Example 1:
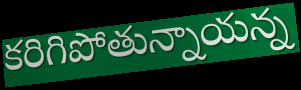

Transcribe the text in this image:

కరిగిపోతున్నాయన్న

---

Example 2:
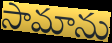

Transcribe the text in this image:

సామాను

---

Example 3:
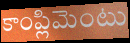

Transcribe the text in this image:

కాంప్లిమెంటు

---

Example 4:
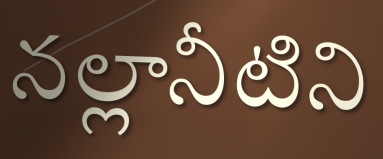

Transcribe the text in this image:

నల్లానీటిని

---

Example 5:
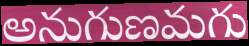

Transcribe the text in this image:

అనుగుణమగు